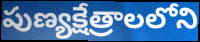
పుణ్యక్షేత్రాలలోని